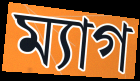
ম্যাগ